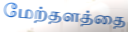
மேற்தளத்தை